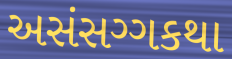
અસંસગ્ગકથા